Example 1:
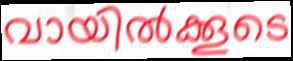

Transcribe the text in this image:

വായിൽക്കൂടെ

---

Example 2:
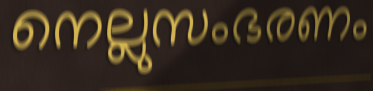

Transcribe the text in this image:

നെല്ലുസംഭരണം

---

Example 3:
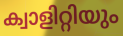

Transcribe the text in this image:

ക്വാളിറ്റിയും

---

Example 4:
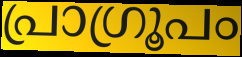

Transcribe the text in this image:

പ്രാഗ്രൂപം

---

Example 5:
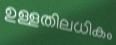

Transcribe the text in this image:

ഉള്ളതിലധികം